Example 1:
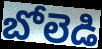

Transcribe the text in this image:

బోలెడి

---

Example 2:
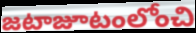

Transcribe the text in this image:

జటాజూటంలోంచి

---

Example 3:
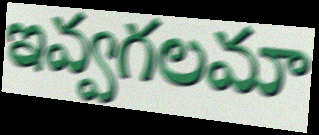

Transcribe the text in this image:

ఇవ్వగలమా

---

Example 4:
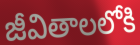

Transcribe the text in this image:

జీవితాలలోకి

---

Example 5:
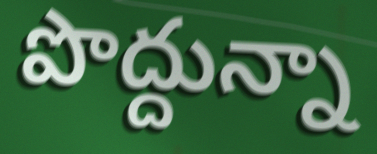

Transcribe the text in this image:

పొద్దున్నా